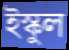
ইস্কুল